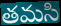
తమసి